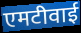
एमटीवाई